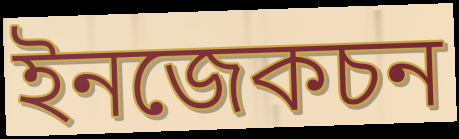
ইনজেকচন